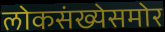
लोकसंख्येसमोर